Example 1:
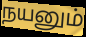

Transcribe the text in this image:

நயனும்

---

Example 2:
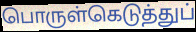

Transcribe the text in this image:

பொருள்கெடுத்துப்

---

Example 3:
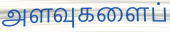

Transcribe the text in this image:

அளவுகளைப்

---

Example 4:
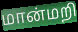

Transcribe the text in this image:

மான்மறி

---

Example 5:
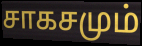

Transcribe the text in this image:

சாகசமும்